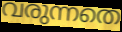
വരുന്നതെ